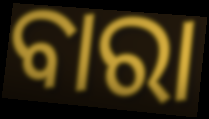
ବାରା